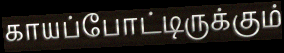
காயப்போட்டிருக்கும்